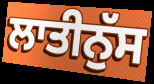
ਲਾਤੀਨੁੱਸ